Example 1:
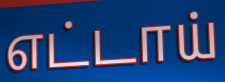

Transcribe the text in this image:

எட்டாய்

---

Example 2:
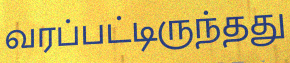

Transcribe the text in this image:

வரப்பட்டிருந்தது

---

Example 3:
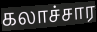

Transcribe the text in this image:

கலாச்சார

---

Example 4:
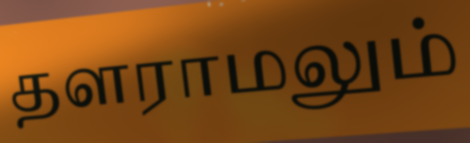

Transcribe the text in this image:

தளராமலும்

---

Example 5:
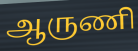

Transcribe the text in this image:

ஆருணி